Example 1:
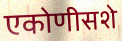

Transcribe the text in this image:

एकोणीसशे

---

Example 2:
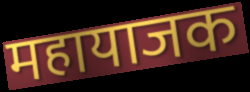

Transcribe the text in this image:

महायाजक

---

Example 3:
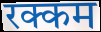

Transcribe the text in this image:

रक्कम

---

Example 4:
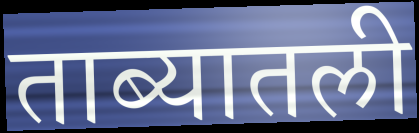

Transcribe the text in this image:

ताब्यातली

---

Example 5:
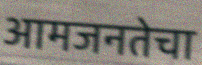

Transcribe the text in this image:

आमजनतेचा